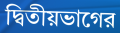
দ্বিতীয়ভাগের